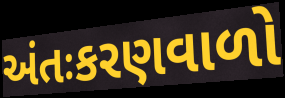
અંતઃકરણવાળો